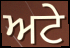
ਅਟੇ